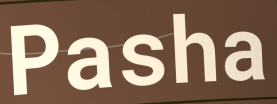
Pasha